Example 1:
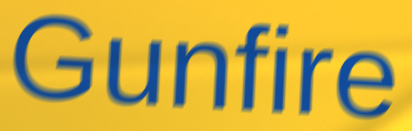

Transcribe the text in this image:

Gunfire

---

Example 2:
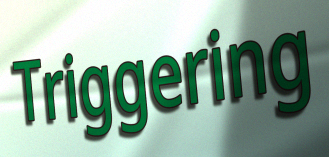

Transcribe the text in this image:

Triggering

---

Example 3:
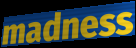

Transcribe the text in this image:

madness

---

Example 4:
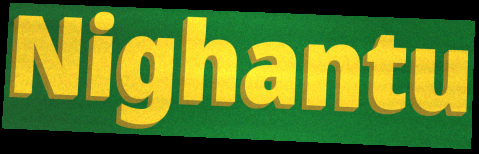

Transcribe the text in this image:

Nighantu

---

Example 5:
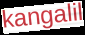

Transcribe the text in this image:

kangalil